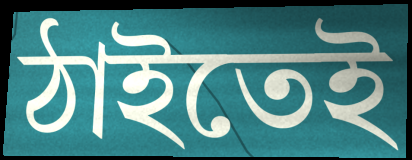
ঠাইতেই